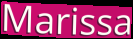
Marissa